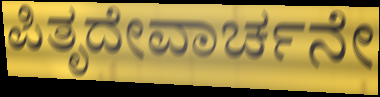
ಪಿತೃದೇವಾರ್ಚನೇ